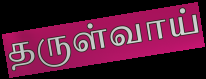
தருள்வாய்